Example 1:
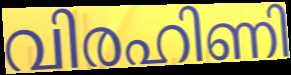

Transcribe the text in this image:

വിരഹിണി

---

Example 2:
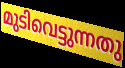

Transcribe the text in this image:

മുടിവെട്ടുന്നതു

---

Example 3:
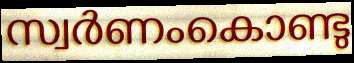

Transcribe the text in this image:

സ്വർണംകൊണ്ടു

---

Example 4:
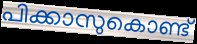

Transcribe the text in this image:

പിക്കാസുകൊണ്ട്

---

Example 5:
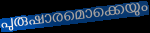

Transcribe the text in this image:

പുരുഷാരമൊക്കെയും